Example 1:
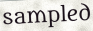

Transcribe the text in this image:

sampled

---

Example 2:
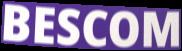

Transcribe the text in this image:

BESCOM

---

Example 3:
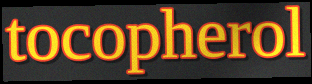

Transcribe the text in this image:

tocopherol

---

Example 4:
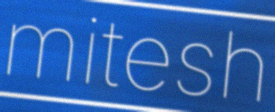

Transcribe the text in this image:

mitesh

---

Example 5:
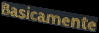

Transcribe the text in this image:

Basicamente